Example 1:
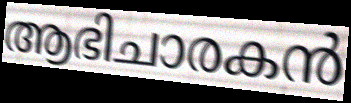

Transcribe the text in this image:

ആഭിചാരകൻ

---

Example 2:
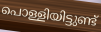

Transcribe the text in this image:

പൊള്ളിയിട്ടുണ്ട്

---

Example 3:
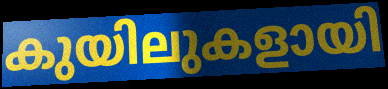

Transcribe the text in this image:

കുയിലുകളായി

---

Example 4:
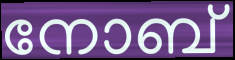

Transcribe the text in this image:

നോബ്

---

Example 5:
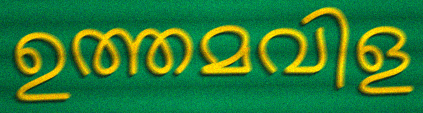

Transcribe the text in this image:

ഉത്തമവിള